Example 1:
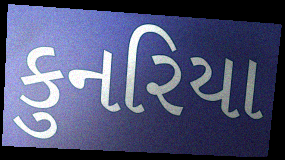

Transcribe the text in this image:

કુનરિયા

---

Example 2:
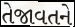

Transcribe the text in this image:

તેજાવતને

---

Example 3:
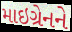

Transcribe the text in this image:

માઇગ્રેનને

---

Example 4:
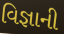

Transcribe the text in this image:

વિજ્ઞાની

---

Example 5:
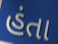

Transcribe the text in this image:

હંતા